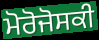
ਮੋਰੋਜੋਸਕੀ